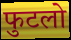
फुटलो